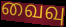
வைவு